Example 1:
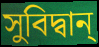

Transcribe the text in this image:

সুবিদ্বান্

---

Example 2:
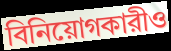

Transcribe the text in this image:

বিনিয়োগকারীও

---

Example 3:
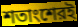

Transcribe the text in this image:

শতাংশেরই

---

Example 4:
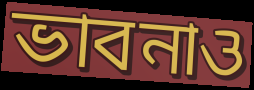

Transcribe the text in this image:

ভাবনাও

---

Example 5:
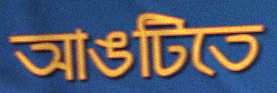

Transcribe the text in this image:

আঙটিতে